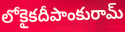
లోకైకదీపాంకురామ్